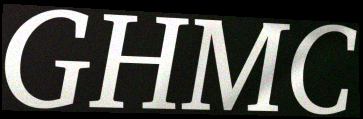
GHMC